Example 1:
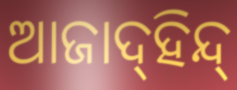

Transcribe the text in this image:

ଆଜାଦ୍‍ହିନ୍ଦ୍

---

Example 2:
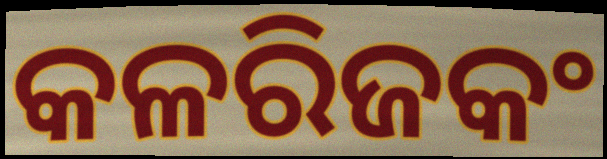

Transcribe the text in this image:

କଳରିଜକଂ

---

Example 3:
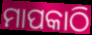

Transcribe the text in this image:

ମାପକାଠି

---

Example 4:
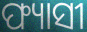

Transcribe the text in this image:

ଫ୍ୟାସୀ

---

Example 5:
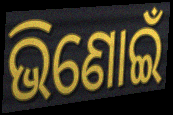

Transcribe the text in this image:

ଭିଣୋଇଁ